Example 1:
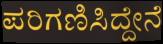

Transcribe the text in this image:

ಪರಿಗಣಿಸಿದ್ದೇನೆ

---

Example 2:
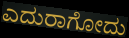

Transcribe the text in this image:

ಎದುರಾಗೋದು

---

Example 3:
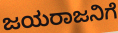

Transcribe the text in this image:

ಜಯರಾಜನಿಗೆ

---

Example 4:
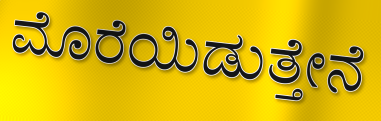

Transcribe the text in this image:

ಮೊರೆಯಿಡುತ್ತೇನೆ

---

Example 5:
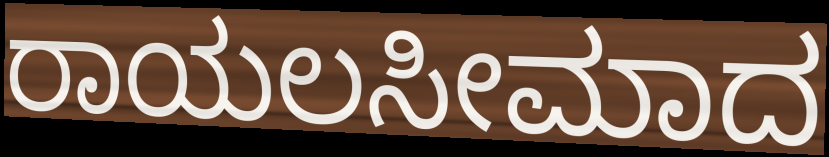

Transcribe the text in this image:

ರಾಯಲಸೀಮಾದ